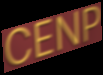
CENP